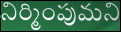
నిర్మింపుమని